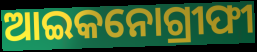
ଆଇକନୋଗ୍ରୀଫୀ